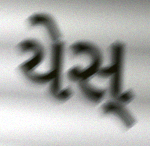
યેસ્